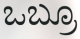
ಒಬ್ರೂ